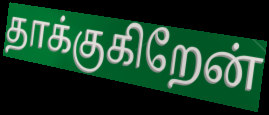
தாக்குகிறேன்